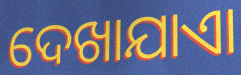
ଦେଖାଯାଏା